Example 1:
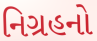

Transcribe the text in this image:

નિગ્રહનો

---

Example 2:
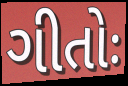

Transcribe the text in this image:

ગીતોઃ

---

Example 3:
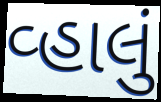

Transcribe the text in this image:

વ્હાલું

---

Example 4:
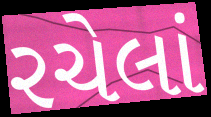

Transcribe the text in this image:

રચેલાં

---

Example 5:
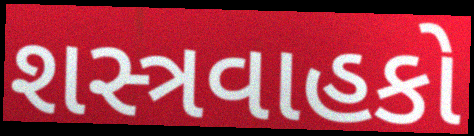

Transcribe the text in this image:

શસ્ત્રવાહકો